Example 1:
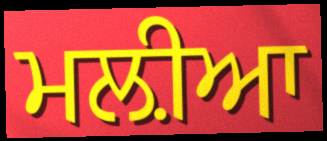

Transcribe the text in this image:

ਮਲ਼ੀਆ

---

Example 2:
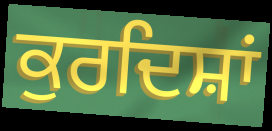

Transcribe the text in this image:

ਕੁਰਦਿਸ਼ਾਂ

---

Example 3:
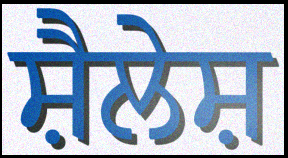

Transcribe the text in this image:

ਸ਼ੈਲੇਸ਼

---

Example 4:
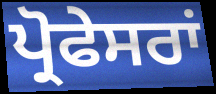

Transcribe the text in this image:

ਪ੍ਰੋਫੇਸਰਾਂ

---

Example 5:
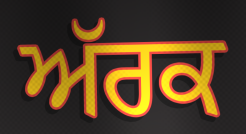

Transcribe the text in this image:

ਅੱਰਕ